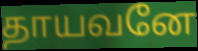
தாயவனே